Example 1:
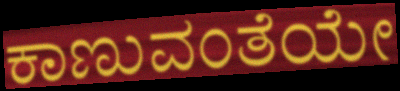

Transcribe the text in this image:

ಕಾಣುವಂತೆಯೇ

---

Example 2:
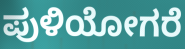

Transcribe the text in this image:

ಪುಳಿಯೋಗರೆ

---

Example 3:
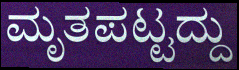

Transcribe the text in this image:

ಮೃತಪಟ್ಟದ್ದು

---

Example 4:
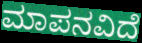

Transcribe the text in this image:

ಮಾಪನವಿದೆ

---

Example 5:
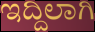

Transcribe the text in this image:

ಇದ್ದಿಲಾಗಿ